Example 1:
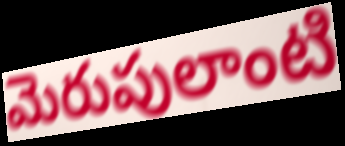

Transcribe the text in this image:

మెరుపులాంటి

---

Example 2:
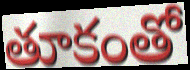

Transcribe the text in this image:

తూకంతో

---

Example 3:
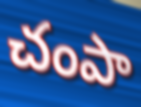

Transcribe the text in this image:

చంపా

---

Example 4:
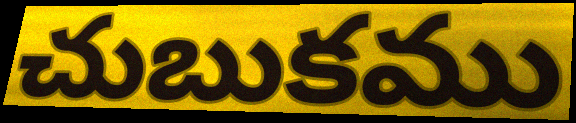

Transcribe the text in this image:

చుబుకము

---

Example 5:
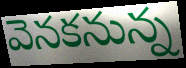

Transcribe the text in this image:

వెనకనున్న